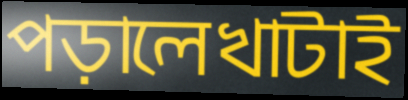
পড়ালেখাটাই